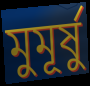
মুমূর্ষু